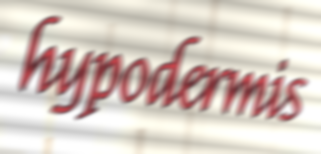
hypodermis